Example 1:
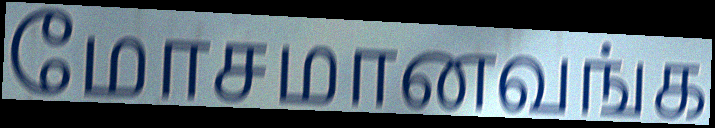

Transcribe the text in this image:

மோசமானவங்க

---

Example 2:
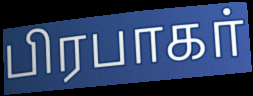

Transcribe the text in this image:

பிரபாகர்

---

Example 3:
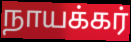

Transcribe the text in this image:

நாயக்கர்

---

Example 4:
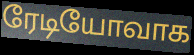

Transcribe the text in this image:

ரேடியோவாக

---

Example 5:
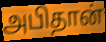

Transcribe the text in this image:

அபிதான்